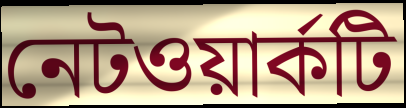
নেটওয়ার্কটি